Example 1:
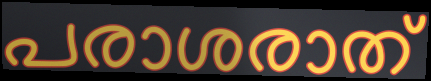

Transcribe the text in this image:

പരാശരാത്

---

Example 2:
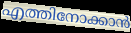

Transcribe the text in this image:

എത്തിനോക്കാൻ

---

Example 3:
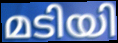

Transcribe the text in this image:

മടിയി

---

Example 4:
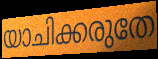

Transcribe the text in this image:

യാചിക്കരുതേ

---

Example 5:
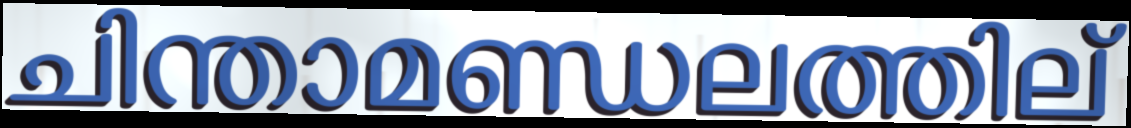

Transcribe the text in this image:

ചിന്താമണ്ഡലത്തില്